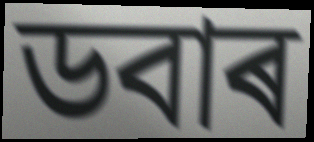
ডবাৰ